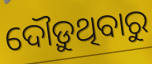
ଦୌଡ଼ୁଥିବାରୁ